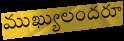
ముఖ్యులందరూ